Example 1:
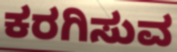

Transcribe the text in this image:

ಕರಗಿಸುವ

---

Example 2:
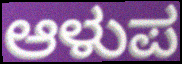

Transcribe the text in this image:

ಆಳುಪ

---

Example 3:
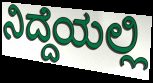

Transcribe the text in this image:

ನಿದ್ದೆಯಲ್ಲಿ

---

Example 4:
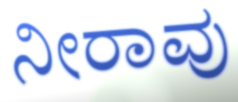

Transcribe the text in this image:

ನೀರಾವು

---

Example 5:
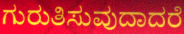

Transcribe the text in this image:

ಗುರುತಿಸುವುದಾದರೆ